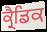
ਕ੍ਰੈਡਿਕ